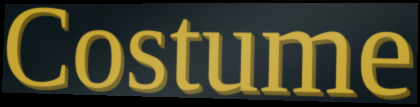
Costume